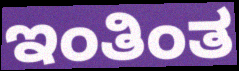
ಇಂತಿಂತ